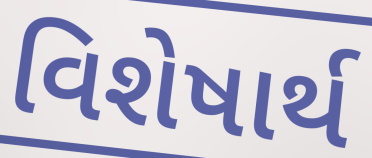
વિશેષાર્થ